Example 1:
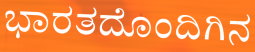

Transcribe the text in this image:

ಭಾರತದೊಂದಿಗಿನ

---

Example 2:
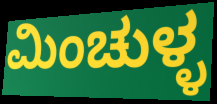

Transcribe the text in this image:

ಮಿಂಚುಳ್ಳ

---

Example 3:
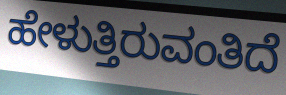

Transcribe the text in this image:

ಹೇಳುತ್ತಿರುವಂತಿದೆ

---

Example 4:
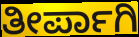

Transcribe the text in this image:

ತೀರ್ಪಾಗಿ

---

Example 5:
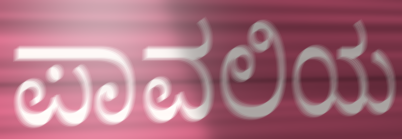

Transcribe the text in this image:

ಪಾವಲಿಯ